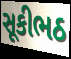
સૂકીભઠ